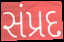
સંપ્રદ